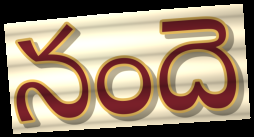
నందె